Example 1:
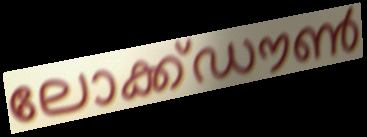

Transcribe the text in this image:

ലോക്ക്ഡൗൺ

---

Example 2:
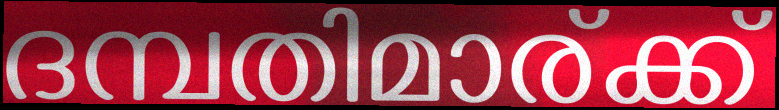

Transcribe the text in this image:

ദമ്പതിമാര്ക്ക്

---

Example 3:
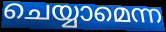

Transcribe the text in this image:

ചെയ്യാമെന്ന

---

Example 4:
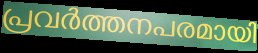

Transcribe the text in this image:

പ്രവർത്തനപരമായി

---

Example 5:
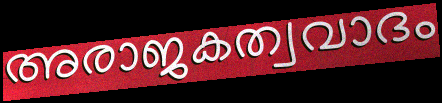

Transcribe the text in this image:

അരാജകത്വവാദം